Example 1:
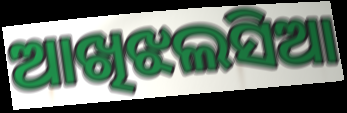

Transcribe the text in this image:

ଆଖିଝଲସିଆ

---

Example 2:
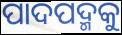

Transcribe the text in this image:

ପାଦପଦ୍ମକୁ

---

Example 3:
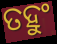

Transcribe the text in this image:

ତହୁଂ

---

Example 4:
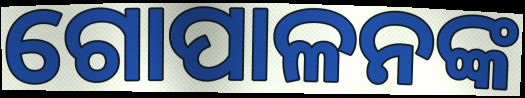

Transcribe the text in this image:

ଗୋପାଳନଙ୍କ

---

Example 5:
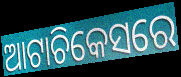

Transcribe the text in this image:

ଆଟାଚିକେସରେ